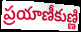
ప్రయాణీకుణ్ణి